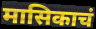
मासिकाचं